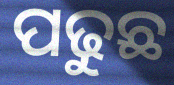
ପଢୁଛ